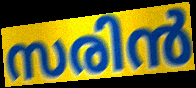
സരിൻ